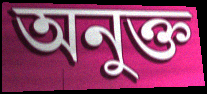
অনুক্ত